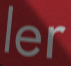
ler